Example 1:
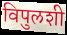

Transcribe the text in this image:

विपुलशी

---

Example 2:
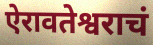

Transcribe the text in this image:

ऐरावतेश्वराचं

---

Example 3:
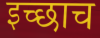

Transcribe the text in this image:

इच्छाच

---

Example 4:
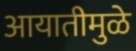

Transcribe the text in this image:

आयातीमुळे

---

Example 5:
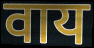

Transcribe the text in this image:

वाय